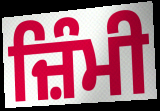
ਜ਼ਿੰਮੀ